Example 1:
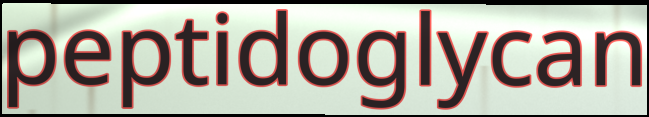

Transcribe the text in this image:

peptidoglycan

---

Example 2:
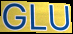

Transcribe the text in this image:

GLU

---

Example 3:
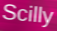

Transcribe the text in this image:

Scilly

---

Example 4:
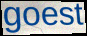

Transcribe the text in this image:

goest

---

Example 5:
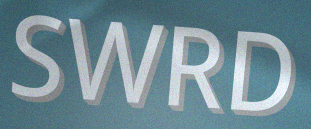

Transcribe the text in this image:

SWRD